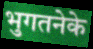
भुगतनेके